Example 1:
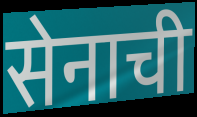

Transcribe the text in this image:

सेनाची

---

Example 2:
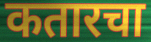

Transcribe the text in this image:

कतारचा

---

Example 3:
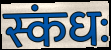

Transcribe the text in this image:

स्कंधः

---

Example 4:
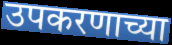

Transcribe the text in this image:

उपकरणाच्या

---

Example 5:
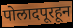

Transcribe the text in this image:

पोलादपूरहून